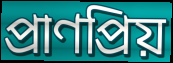
প্রাণপ্রিয়